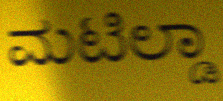
ಮಟಿಲ್ಡಾ